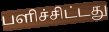
பளிச்சிட்டது